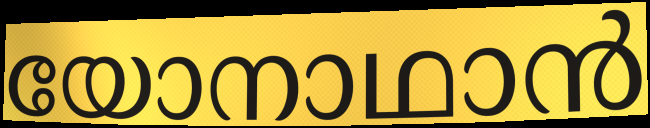
യോനാഥാൻ